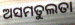
ଅସମତୁଲତା